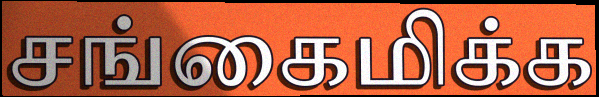
சங்கைமிக்க